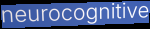
neurocognitive